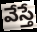
వేస్తే